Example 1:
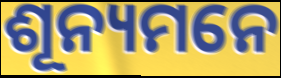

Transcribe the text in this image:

ଶୂନ୍ୟମନେ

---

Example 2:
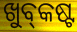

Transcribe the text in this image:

ଖୁବ୍‌କଷ୍ଟ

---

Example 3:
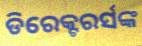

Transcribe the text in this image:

ଡିରେକ୍ଟରର୍ସଙ୍କ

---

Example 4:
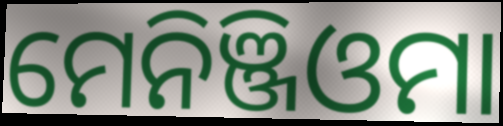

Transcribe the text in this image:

ମେନିଞ୍ଜିଓମା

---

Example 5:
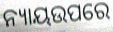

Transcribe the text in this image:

ନ୍ୟାୟଉପରେ